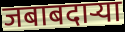
जबाबदाऱ्या